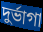
দুর্ভাগা